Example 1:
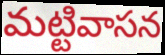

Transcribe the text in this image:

మట్టివాసన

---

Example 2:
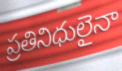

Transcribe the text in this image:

ప్రతినిధులైనా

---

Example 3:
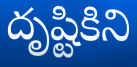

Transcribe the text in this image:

దృష్టికిని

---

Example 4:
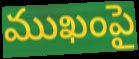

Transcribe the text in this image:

ముఖంపై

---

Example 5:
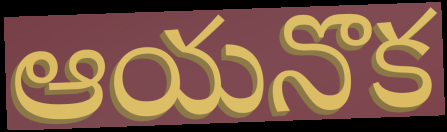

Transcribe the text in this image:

ఆయనొక